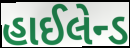
હાઈલેન્ડ